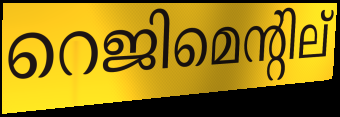
റെജിമെന്റില്